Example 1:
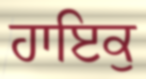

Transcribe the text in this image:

ਹਾਇਕੁ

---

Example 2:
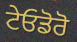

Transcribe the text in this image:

ਟੇਓਡੋਰੋ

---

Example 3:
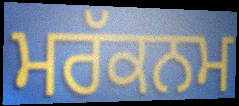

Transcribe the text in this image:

ਮਰੱਕਨਮ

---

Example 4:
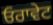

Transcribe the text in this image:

ਓਰਾਵੇਟ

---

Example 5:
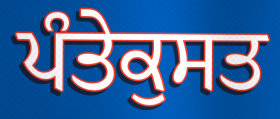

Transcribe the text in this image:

ਪੰਤੇਕੁਸਤ